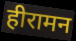
हीरामन